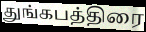
துங்கபத்திரை